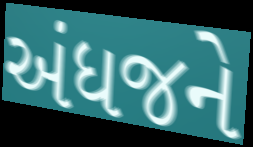
અંધજને